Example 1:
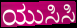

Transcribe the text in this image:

ಯುಸಿಸಿ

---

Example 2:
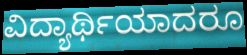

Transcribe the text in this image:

ವಿದ್ಯಾರ್ಥಿಯಾದರೂ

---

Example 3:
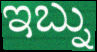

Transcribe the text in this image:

ಇಬ್ನು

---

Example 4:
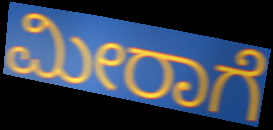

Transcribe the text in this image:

ಮೀರಾಗೆ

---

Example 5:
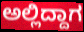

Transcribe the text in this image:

ಅಲ್ಲಿದ್ದಾಗ